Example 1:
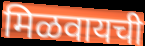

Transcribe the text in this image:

मिळवायची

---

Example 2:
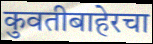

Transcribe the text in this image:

कुवतीबाहेरचा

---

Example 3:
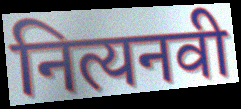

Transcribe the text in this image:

नित्यनवी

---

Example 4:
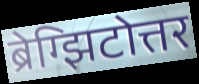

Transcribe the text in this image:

ब्रेग्झिटोत्तर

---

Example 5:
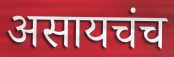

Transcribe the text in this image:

असायचंच